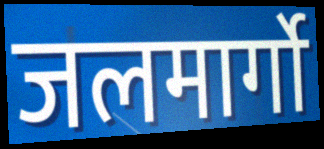
जलमार्गो